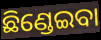
ଛିଣ୍ଡେଇବା